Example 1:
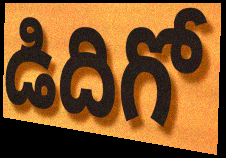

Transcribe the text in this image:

డిదిగో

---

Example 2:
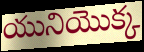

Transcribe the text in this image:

యునియొక్క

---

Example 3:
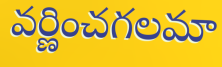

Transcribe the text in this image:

వర్ణించగలమా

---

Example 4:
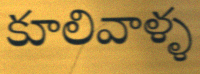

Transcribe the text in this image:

కూలివాళ్ళ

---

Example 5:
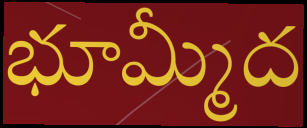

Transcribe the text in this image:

భూమ్మీద